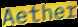
Aether